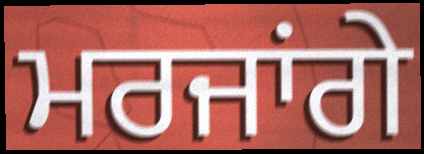
ਮਰਜਾਂਗੇ